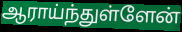
ஆராய்ந்துள்ளேன்